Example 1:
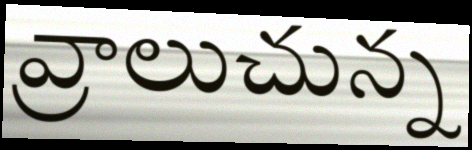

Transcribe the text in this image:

వ్రాలుచున్న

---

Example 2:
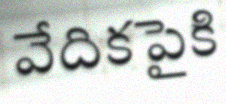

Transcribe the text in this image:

వేదికపైకి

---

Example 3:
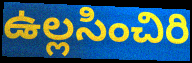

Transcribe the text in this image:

ఉల్లసించిరి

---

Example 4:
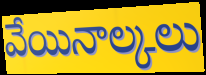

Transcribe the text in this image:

వేయినాల్కలు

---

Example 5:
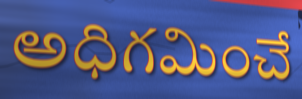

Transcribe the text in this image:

అధిగమించే